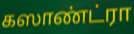
கஸாண்ட்ரா